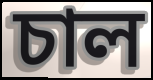
চাল